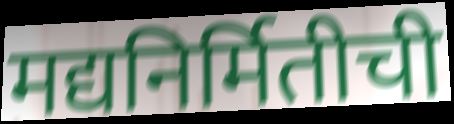
मद्यनिर्मितीची